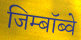
जिम्बॉब्वे